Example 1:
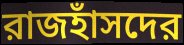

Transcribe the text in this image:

রাজহাঁসদের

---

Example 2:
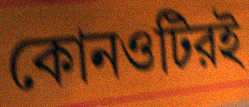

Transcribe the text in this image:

কোনওটিরই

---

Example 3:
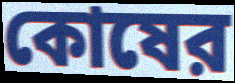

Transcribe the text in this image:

কোষের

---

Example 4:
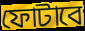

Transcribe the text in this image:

ফোটাবে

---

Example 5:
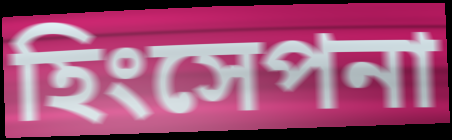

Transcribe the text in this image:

হিংসেপনা